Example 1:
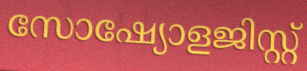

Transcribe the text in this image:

സോഷ്യോളജിസ്റ്റ്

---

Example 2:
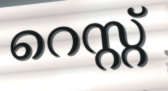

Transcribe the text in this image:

റെസ്റ്റ്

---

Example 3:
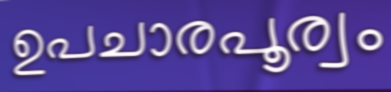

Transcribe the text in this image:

ഉപചാരപൂര്വം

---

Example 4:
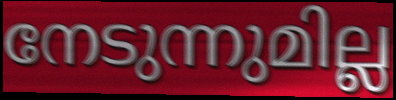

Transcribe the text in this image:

നേടുന്നുമില്ല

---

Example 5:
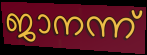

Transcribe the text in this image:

ജാനന്ന്